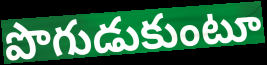
పొగుడుకుంటూ